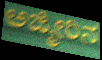
ಅಜ್ಮೀರಿನ